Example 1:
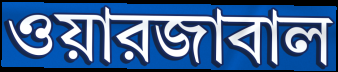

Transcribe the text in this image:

ওয়ারজাবাল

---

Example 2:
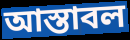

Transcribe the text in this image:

আস্তাবল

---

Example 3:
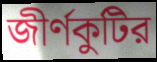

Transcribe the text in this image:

জীর্ণকুটির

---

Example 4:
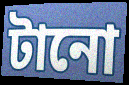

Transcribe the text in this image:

টানো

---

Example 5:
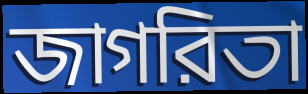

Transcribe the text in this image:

জাগরিতা